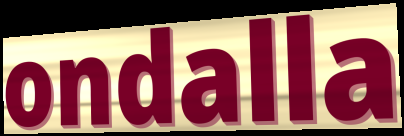
ondalla